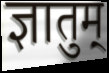
ज्ञातुम्